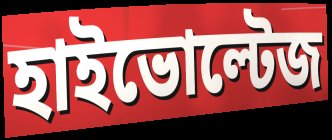
হাইভোল্টেজ